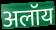
अलॉय